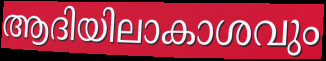
ആദിയിലാകാശവും